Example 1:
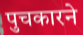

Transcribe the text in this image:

पुचकारने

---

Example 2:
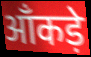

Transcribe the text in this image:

आँकड़े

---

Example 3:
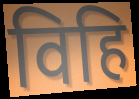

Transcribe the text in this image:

विहि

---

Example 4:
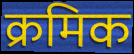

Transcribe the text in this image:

क्रमिक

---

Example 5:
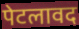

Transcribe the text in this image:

पेटलावद